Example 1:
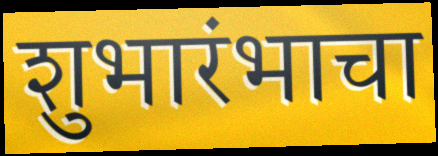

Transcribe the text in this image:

शुभारंभाचा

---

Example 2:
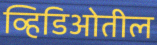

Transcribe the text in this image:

व्हिडिओतील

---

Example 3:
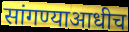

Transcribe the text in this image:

सांगण्याआधीच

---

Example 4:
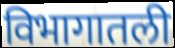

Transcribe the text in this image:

विभागातली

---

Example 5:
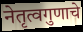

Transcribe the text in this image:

नेतृत्वगुणाचे